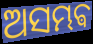
ଅସମ୍ଭଵ